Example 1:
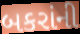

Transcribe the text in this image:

બકરાંની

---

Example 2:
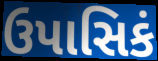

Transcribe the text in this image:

ઉપાસિકં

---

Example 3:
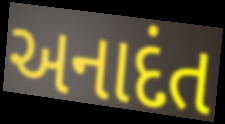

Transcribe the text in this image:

અનાદંત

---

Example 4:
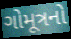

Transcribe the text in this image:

ગોમૂત્રનો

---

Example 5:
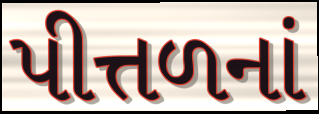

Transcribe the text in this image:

પીત્તળનાં